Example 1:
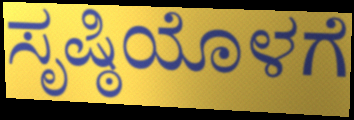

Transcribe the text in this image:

ಸೃಷ್ಠಿಯೊಳಗೆ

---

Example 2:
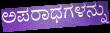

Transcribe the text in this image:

ಅಪರಾಧಗಳನ್ನು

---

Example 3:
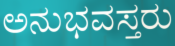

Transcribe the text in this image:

ಅನುಭವಸ್ತರು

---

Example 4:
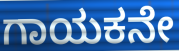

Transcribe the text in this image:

ಗಾಯಕನೇ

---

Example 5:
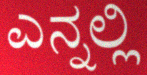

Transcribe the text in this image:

ಎನ್ನಲ್ಲಿ